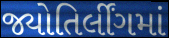
જ્યોતિર્લીંગમાં